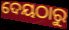
ଦେୟଠାରୁ